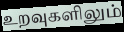
உறவுகளிலும்